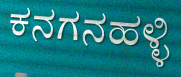
ಕನಗನಹಳ್ಳಿ